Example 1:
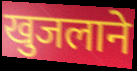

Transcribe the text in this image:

खुजलाने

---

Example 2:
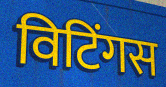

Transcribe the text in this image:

विटिंगस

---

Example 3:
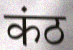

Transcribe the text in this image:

कंठ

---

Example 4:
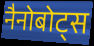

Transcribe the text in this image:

नैनोबोट्स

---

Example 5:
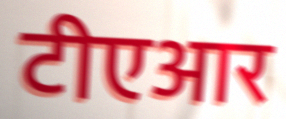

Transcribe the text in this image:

टीएआर